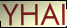
YHAI